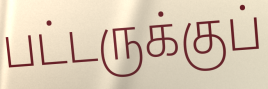
பட்டருக்குப்